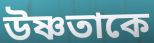
উষ্ণতাকে